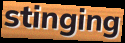
stinging